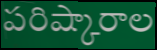
పరిష్కారాల